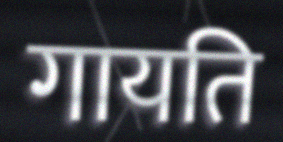
गायति